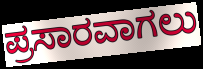
ಪ್ರಸಾರವಾಗಲು